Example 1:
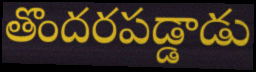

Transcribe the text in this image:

తొందరపడ్డాడు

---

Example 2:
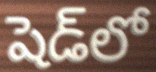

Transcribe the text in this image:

షెడ్‌లో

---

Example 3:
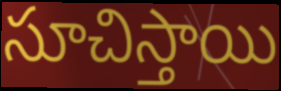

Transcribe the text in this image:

సూచిస్తాయి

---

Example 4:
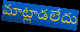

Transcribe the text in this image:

మాట్లాడలేదు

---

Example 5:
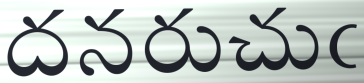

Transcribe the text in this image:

దనరుచుఁ